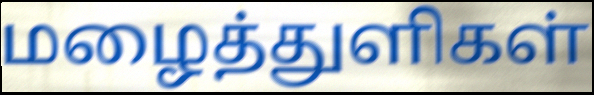
மழைத்துளிகள்